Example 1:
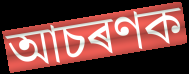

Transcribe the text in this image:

আচৰণক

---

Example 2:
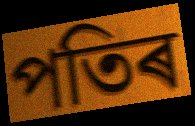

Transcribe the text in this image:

পতিৰ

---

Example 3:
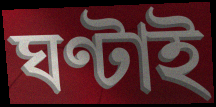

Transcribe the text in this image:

ঘণ্টাই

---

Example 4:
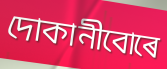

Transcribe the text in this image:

দোকানীবোৰে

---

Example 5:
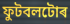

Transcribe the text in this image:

ফুটবলটোৰ